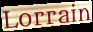
Lorrain